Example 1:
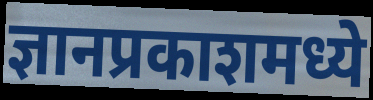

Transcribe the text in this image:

ज्ञानप्रकाशमध्ये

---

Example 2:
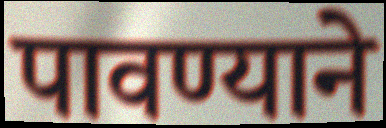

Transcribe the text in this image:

पावण्याने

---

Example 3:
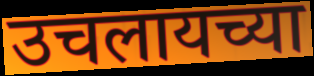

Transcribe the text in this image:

उचलायच्या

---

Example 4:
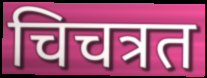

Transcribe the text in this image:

चिचत्रत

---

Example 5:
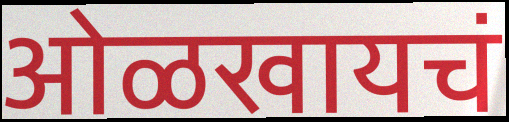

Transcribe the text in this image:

ओळखायचं